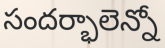
సందర్భాలెన్నో